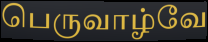
பெருவாழ்வே